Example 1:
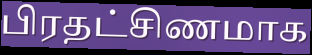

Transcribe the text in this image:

பிரதட்சிணமாக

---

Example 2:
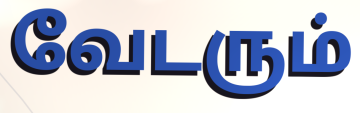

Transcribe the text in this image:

வேடரும்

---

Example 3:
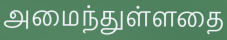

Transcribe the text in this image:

அமைந்துள்ளதை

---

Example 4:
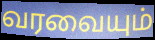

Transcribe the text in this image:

வரவையும்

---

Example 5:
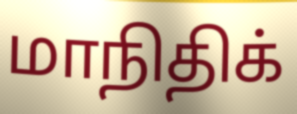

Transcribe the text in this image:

மாநிதிக்